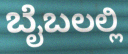
ಬೈಬಲಲ್ಲಿ